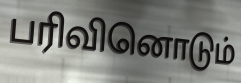
பரிவினொடும்